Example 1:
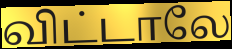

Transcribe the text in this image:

விட்டாலே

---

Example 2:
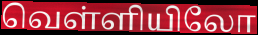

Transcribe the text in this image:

வெள்ளியிலோ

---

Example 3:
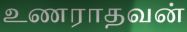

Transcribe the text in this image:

உணராதவன்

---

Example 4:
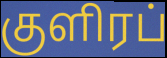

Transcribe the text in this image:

குளிரப்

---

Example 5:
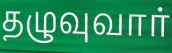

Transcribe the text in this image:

தழுவுவார்